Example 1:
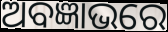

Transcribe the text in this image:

ଅବଜ୍ଞାଭରେ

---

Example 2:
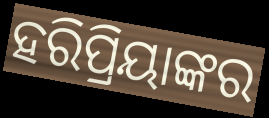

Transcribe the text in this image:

ହରିପ୍ରିୟାଙ୍କର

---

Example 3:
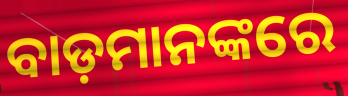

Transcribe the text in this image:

ବାଡ଼ମାନଙ୍କରେ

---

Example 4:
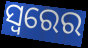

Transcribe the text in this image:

ସ୍ୱରେର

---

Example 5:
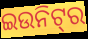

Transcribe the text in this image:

ଇଉନିଟ୍‍ର